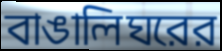
বাঙালিঘরের